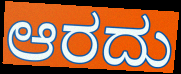
ಆರದು